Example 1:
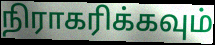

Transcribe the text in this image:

நிராகரிக்கவும்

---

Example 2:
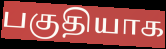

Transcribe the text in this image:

பகுதியாக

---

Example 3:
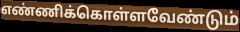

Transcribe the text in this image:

எண்ணிக்கொள்ளவேண்டும்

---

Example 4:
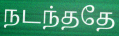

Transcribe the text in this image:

நடந்ததே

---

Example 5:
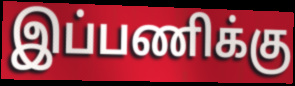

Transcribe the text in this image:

இப்பணிக்கு